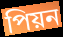
পিয়ন